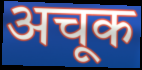
अचूक